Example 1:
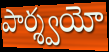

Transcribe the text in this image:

పార్శ్వయో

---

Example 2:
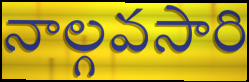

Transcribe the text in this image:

నాల్గవసారి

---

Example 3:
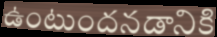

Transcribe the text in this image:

ఉంటుందనడానికి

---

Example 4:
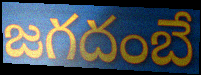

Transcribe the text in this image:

జగదంబే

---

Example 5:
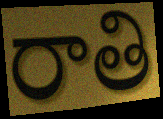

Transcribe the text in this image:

రాతి